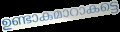
ഉണ്ടാകുമാറാകട്ടെ